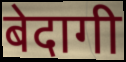
बेदागी